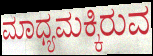
ಮಾಧ್ಯಮಕ್ಕಿರುವ